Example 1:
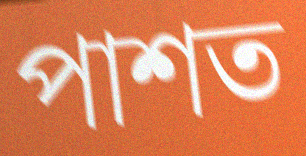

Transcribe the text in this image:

পাশত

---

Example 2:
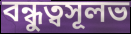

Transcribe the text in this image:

বন্ধুত্বসূলভ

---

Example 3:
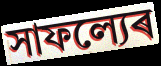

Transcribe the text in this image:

সাফল্যেৰ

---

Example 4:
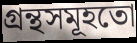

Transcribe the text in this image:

গ্ৰন্থসমূহতো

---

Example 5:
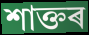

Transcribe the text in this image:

শাক্তৰ